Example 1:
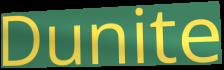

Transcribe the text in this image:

Dunite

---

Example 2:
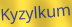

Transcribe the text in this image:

Kyzylkum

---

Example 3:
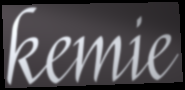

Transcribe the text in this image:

kemie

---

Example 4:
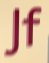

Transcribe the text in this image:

Jf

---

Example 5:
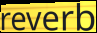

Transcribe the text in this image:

reverb